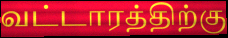
வட்டாரத்திற்கு